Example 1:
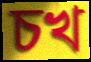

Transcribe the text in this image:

চখ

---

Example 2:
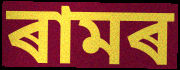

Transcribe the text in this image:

ৰামৰ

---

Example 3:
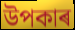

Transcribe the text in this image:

উপকাৰ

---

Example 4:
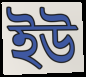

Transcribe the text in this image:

ইউ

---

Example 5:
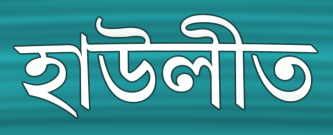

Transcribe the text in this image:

হাউলীত